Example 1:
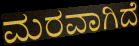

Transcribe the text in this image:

ಮರವಾಗಿದೆ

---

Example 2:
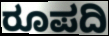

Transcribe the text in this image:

ರೂಪದಿ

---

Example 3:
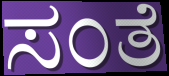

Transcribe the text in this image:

ಸಂತೆ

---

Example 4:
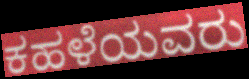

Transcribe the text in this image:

ಕಹಳೆಯವರು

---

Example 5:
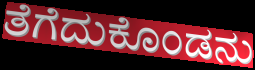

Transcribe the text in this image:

ತೆಗೆದುಕೊಂಡನು